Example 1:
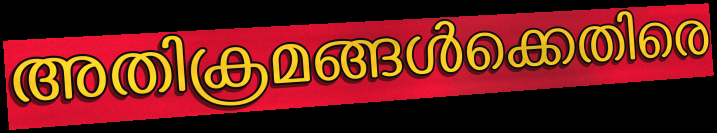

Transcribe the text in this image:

അതിക്രമങ്ങൾക്കെതിരെ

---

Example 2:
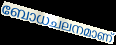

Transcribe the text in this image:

ബോധചലനമാണ്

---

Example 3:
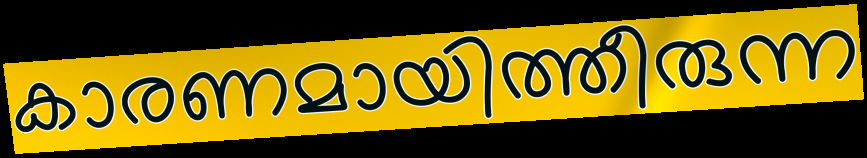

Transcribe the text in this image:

കാരണമായിത്തീരുന്ന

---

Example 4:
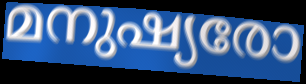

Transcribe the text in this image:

മനുഷ്യരോ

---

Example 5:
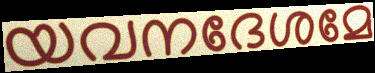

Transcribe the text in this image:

യവനദേശമേ